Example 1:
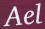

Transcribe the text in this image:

Ael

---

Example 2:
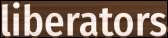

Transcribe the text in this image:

liberators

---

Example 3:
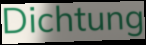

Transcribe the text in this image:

Dichtung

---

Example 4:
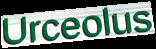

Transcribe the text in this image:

Urceolus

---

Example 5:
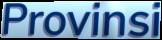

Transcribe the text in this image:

Provinsi